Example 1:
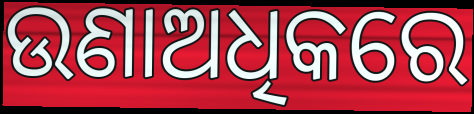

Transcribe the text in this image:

ଉଣାଅଧିକରେ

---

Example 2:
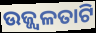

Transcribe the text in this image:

ଉଜ୍ଜ୍ୱଳତାଟି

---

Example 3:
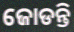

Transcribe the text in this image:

ଜୋଡନ୍ତି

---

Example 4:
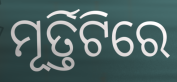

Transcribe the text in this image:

ମୂର୍ତ୍ତିଟିରେ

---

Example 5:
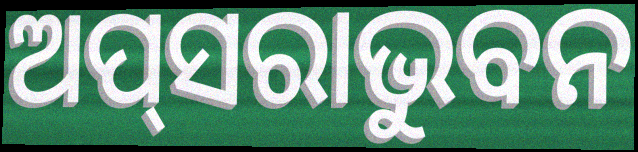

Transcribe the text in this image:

ଅପ୍‍ସରାଭୁବନ